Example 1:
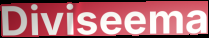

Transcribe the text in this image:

Diviseema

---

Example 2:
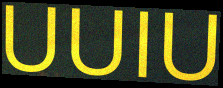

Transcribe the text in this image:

UUIU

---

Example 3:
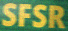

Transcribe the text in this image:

SFSR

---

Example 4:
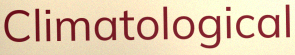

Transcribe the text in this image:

Climatological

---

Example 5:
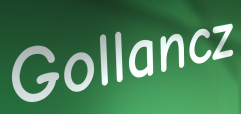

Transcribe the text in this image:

Gollancz